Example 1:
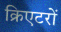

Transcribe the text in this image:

क्रिएटरों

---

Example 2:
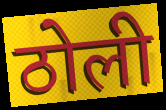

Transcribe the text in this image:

ठोली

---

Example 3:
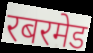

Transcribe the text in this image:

रबरमेड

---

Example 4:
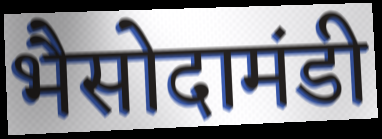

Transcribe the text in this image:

भैसोदामंडी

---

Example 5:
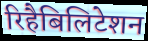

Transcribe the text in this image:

रिहैबिलिटेशन